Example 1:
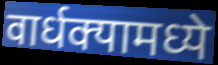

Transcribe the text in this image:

वार्धक्यामध्ये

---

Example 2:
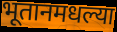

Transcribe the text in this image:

भूतानमधल्या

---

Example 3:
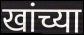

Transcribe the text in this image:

खांच्या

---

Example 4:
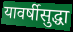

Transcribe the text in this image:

यावर्षीसुद्धा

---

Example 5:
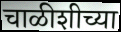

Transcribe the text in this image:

चाळीशीच्या